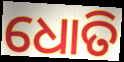
ଧୋତି